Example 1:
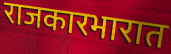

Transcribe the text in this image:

राजकारभारात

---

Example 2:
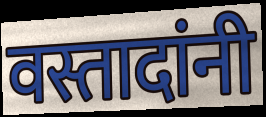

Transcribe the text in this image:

वस्तादांनी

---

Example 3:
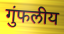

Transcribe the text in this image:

गुंफलीय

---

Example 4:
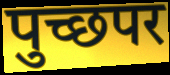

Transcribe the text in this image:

पुच्छपर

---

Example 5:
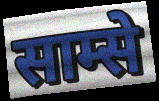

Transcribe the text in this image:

साम्से